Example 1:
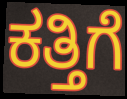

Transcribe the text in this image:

ಕತ್ತಿಗೆ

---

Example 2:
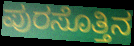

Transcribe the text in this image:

ಪುರಸೊತ್ತಿನ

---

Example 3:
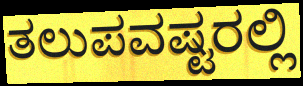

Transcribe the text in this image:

ತಲುಪವಷ್ಟರಲ್ಲಿ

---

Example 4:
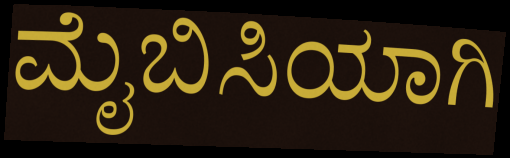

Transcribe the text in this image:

ಮೈಬಿಸಿಯಾಗಿ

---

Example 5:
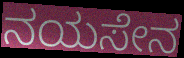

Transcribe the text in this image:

ನಯಸೇನ